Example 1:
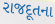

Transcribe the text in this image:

રાજદૂતના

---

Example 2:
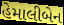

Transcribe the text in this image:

હેમાલીબેન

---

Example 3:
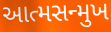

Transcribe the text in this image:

આત્મસન્મુખ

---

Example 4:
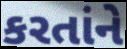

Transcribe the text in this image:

કરતાંને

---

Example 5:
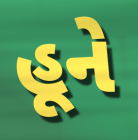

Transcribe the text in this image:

હૂને